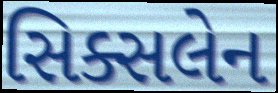
સિક્સલેન